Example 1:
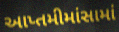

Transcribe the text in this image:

આપ્તમીમાંસામાં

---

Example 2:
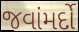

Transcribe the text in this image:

જવાંમર્દો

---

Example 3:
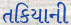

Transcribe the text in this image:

તકિયાની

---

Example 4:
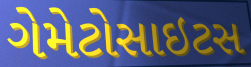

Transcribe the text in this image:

ગેમેટોસાઇટસ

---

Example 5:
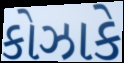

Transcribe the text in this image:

કોઝાકે